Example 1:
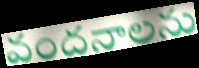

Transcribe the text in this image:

వందనాలను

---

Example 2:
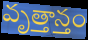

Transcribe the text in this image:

వృత్తాన్తం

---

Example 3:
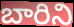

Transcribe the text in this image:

బారిని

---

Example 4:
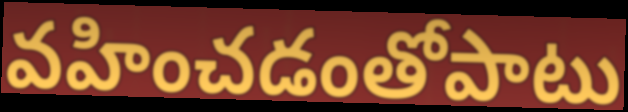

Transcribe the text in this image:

వహించడంతోపాటు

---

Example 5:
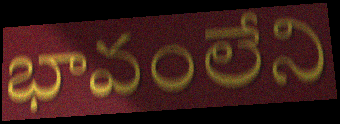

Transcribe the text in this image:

భావంలేని